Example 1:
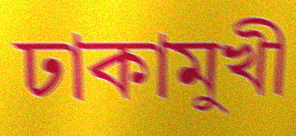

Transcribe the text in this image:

ঢাকামুখী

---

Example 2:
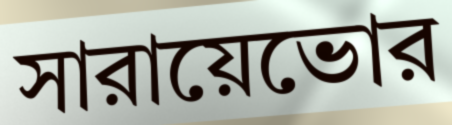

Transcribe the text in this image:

সারায়েভোর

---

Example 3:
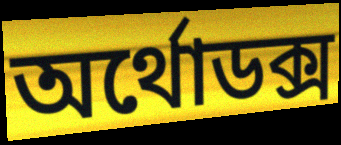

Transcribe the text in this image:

অর্থোডক্স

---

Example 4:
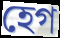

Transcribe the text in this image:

হেগ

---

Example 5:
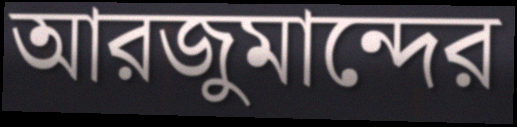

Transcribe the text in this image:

আরজুমান্দের